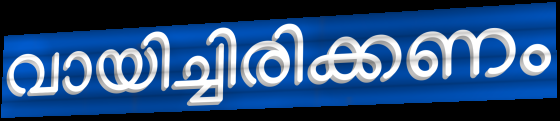
വായിച്ചിരിക്കണം